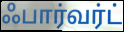
ஃபார்வர்ட்